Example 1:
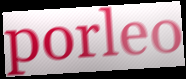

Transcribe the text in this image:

porleo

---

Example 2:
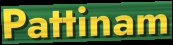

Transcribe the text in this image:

Pattinam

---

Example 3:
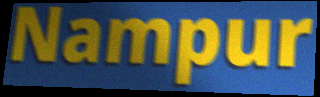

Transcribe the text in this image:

Nampur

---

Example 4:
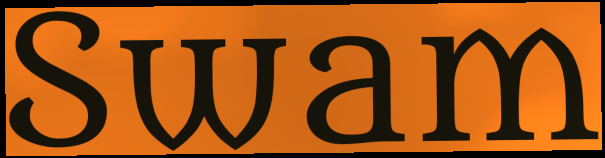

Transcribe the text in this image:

Swam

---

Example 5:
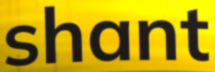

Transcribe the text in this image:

shant